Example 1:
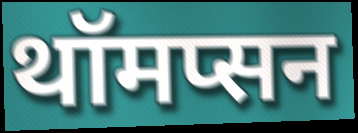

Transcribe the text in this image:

थॉमप्सन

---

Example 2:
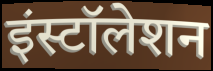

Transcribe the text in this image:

इंस्टॉलेशन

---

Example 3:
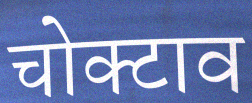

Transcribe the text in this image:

चोक्टाव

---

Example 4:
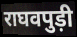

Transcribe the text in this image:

राघवपुड़ी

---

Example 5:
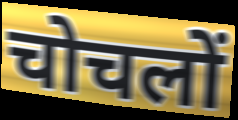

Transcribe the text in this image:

चोचलों